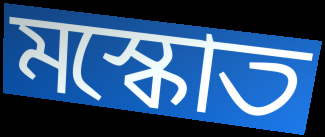
মস্কোত